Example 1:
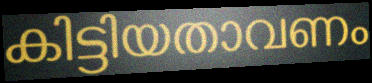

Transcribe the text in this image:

കിട്ടിയതാവണം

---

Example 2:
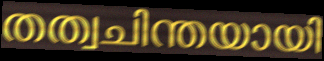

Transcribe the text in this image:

തത്വചിന്തയായി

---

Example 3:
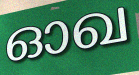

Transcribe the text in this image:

ഓഖ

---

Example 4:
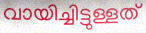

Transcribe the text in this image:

വായിച്ചിട്ടുള്ളത്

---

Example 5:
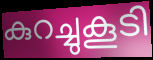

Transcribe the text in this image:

കുറച്ചുകൂടി